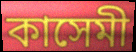
কাসেমী